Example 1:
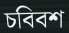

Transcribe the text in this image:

চবিবশ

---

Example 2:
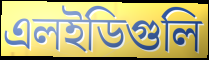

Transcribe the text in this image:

এলইডিগুলি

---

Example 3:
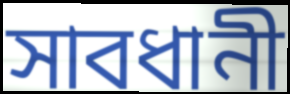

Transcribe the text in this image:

সাবধানী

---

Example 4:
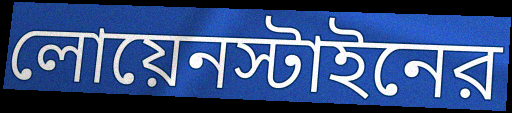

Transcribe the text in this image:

লোয়েনস্টাইনের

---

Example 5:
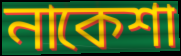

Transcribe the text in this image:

নাকেশা